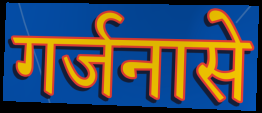
गर्जनासे